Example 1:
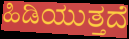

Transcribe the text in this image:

ಹಿಡಿಯುತ್ತದೆ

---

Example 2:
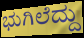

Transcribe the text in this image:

ಭುಗಿಲೆದ್ದು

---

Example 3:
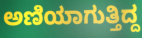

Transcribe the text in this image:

ಅಣಿಯಾಗುತ್ತಿದ್ದ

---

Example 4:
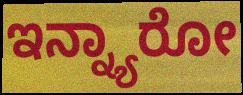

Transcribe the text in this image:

ಇನ್ನ್ಯಾರೋ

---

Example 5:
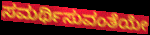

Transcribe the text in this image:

ಸಮರ್ಥಿಸುವಂತೆಯೇ